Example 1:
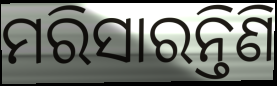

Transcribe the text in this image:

ମରିସାରନ୍ତିଣି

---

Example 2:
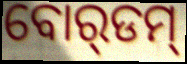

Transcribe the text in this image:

ବୋର୍‌ଡମ୍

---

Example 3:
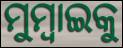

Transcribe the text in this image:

ମୁମ୍ୱାଇକୁ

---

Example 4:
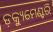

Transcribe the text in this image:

ଡ଼କ୍ୟୁମେଣ୍ଟରି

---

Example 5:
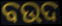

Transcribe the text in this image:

ବଉଦ